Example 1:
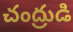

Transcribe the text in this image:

చంద్రుడి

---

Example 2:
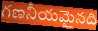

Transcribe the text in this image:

గణనీయమైనది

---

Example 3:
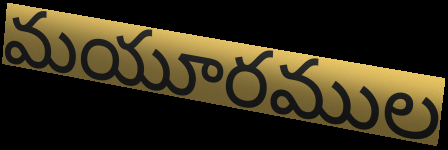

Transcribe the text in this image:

మయూరముల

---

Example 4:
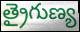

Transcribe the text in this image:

త్రైగుణ్య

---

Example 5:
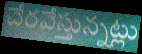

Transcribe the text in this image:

చేరవేస్తున్నట్లు